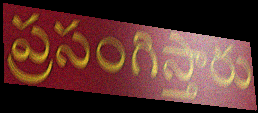
ప్రసంగిస్తారు